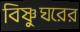
বিষ্ণুঘরের